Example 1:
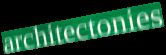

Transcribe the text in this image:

architectonies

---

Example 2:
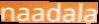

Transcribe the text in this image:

naadala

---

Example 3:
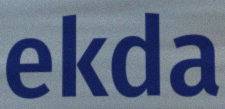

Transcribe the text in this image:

ekda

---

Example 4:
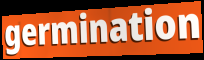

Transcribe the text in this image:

germination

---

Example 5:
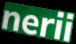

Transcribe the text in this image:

nerii